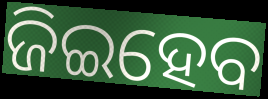
ଜିଇହେବ